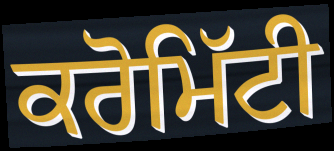
ਕਰੋਮਿੱਟੀ